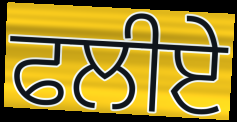
ਫਲੀਏ